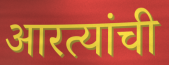
आरत्यांची